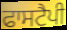
ਫਾਸਟੈਪੀ